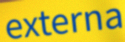
externa